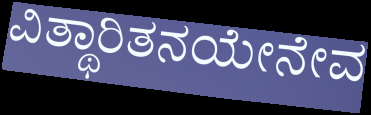
ವಿತ್ಥಾರಿತನಯೇನೇವ